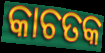
କାଚତକ